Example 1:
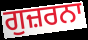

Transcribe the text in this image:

ਗੁਜ਼ਰਨਾ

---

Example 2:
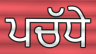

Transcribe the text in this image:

ਪਚੱਧੇ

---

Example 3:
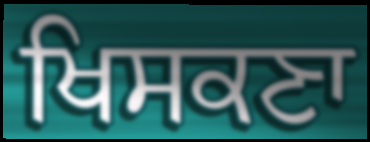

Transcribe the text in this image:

ਖਿਸਕਣਾ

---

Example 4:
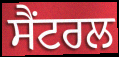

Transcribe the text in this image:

ਸੈਂਟਰਲ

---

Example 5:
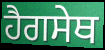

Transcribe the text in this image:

ਹੈਗਸੇਥ